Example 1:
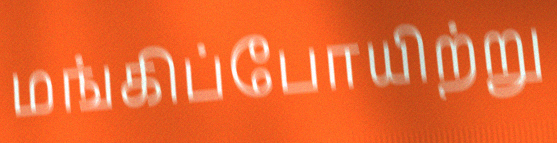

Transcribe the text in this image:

மங்கிப்போயிற்று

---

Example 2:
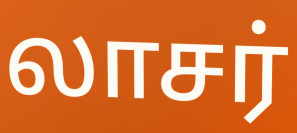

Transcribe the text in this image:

லாசர்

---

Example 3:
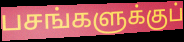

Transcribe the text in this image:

பசங்களுக்குப்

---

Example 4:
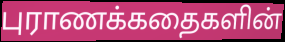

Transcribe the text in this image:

புராணக்கதைகளின்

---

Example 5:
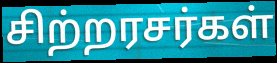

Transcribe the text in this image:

சிற்றரசர்கள்